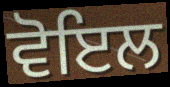
ਵੋਇਲ